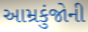
આમ્રકુંજોની